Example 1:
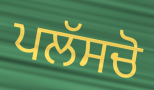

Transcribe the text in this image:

ਪਲੱਸਚੋ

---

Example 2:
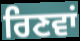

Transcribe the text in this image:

ਰਿਣਵਾਂ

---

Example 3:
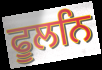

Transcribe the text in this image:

ਫੂਲਨਿ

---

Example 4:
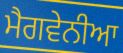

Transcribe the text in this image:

ਮੈਗਵੇਨੀਆ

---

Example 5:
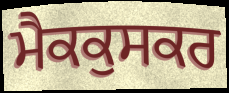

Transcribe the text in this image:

ਮੈਕਕੁਸਕਰ